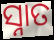
ସ୍ନାତ